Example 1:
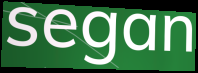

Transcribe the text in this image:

segan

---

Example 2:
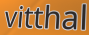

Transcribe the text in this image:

vitthal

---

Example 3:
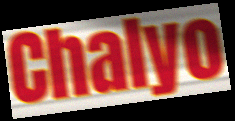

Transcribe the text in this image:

Chalyo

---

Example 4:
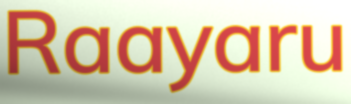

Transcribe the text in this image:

Raayaru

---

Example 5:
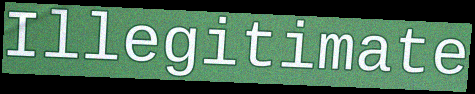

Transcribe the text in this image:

Illegitimate